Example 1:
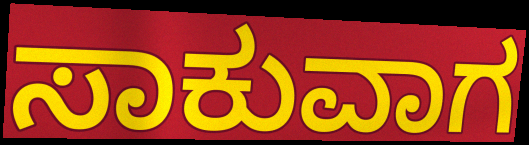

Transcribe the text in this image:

ಸಾಕುವಾಗ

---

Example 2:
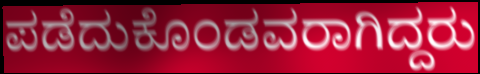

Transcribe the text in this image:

ಪಡೆದುಕೊಂಡವರಾಗಿದ್ದರು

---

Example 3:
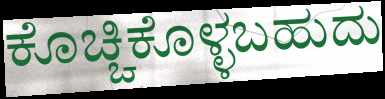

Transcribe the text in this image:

ಕೊಚ್ಚಿಕೊಳ್ಳಬಹುದು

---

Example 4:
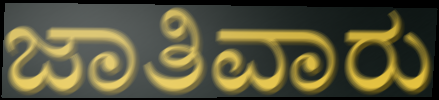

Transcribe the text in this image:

ಜಾತಿವಾರು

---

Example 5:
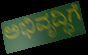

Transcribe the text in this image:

ಅಭಿವೃದ್ಧಿಗೆ